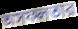
অসফলতার